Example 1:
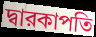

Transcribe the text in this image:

দ্বারকাপতি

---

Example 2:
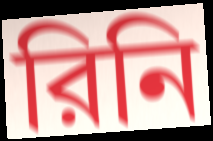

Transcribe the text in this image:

রিনি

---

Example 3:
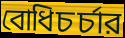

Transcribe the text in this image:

বোধিচর্চার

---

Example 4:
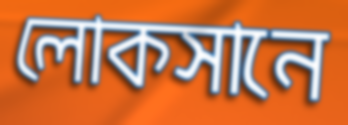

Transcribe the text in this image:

লোকসানে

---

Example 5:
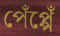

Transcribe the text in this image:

পেঁপ্পেঁ